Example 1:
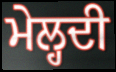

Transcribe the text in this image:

ਮੇਲ੍ਹਦੀ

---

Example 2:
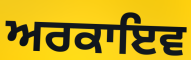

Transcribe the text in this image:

ਅਰਕਾਇਵ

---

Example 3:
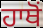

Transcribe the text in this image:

ਹਾਥੋਂ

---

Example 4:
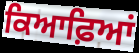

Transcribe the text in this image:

ਕਿਆਫ਼ਿਆਂ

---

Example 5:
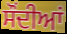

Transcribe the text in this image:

ਸੌਂਦੀਆਂ